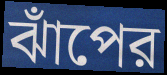
ঝাঁপের